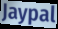
Jaypal